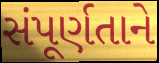
સંપૂર્ણતાને